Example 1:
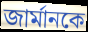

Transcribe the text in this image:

জার্মানকে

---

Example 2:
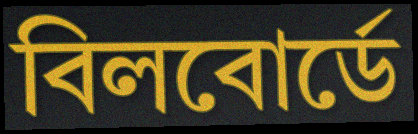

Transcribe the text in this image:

বিলবোর্ডে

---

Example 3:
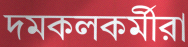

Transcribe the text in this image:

দমকলকর্মীরা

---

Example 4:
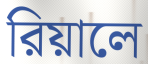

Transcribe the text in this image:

রিয়ালে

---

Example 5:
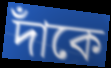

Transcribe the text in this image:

দাঁকে